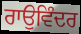
ਰਾਉਵਿੰਦਰ